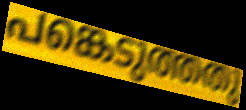
പങ്കെടുത്തതു